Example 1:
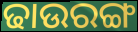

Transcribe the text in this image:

ଢାଉରଙ୍ଗ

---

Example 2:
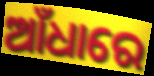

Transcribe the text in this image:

ଆଁଧାରେ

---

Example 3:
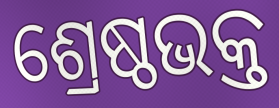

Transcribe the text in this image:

ଶ୍ରେଷ୍ଠଭକ୍ତ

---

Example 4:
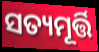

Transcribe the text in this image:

ସତ୍ୟମୂର୍ତ୍ତି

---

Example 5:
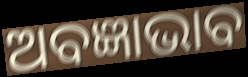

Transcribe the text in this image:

ଅବଜ୍ଞାଭାବ